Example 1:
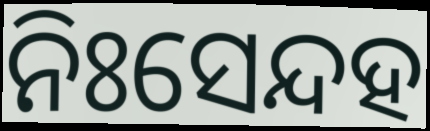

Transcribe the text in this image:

ନିଃସେନ୍ଦହ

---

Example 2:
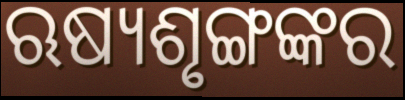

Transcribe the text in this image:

ଋଷ୍ୟଶୃଙ୍ଗଙ୍କର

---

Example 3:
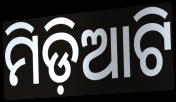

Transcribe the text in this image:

ମିଡ଼ିଆଟି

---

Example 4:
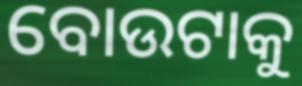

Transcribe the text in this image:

ବୋଉଟାକୁ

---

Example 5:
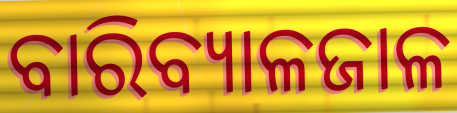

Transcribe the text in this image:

ବାରିବ୍ୟାଳଜାଳ